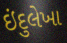
ઇંદુલેખા